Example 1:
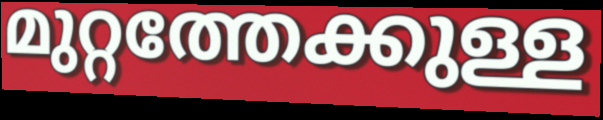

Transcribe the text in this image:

മുറ്റത്തേക്കുള്ള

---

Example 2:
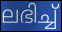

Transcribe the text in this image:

ലഭിച്ച്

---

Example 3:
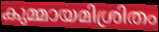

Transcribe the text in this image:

കുമ്മായമിശ്രിതം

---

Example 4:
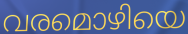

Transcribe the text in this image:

വരമൊഴിയെ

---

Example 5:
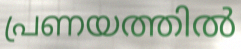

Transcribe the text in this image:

പ്രണയത്തിൽ